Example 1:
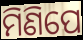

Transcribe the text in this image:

ମିଣିପେ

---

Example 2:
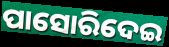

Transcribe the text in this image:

ପାସୋରିଦେଇ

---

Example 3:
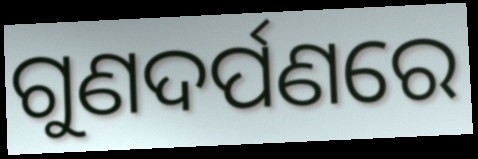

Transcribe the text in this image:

ଗୁଣଦର୍ପଣରେ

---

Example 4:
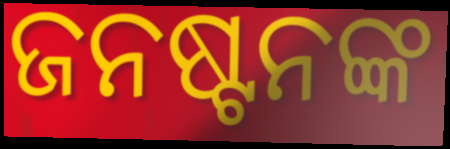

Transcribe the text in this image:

ଜନଷ୍ଟନଙ୍କ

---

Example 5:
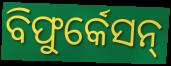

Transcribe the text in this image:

ବିଫୁର୍କେସନ୍